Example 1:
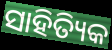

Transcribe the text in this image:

ସାହିତ୍ୟିକ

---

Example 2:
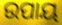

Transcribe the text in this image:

ଉପାୟ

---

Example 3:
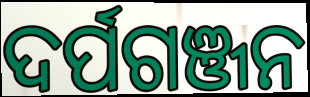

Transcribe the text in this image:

ଦର୍ପଗଞ୍ଜନ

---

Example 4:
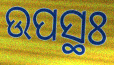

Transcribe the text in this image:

ଉପସ୍ଥଃ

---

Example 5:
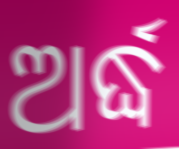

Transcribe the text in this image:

ଅର୍ଦ୍ଧ